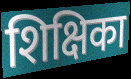
शिक्षिका